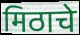
मिठाचे